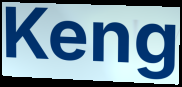
Keng